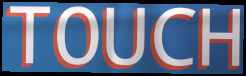
TOUCH